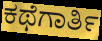
ಕಥೆಗಾರ್ತಿ